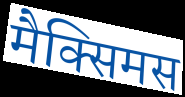
मैक्सिमस